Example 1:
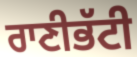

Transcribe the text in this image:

ਰਾਣੀਭੱਟੀ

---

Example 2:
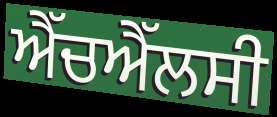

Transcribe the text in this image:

ਐੱਚਐੱਲਸੀ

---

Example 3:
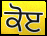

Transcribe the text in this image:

ਕੋੲ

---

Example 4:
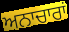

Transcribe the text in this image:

ਅਨਾਚਾਰਾਂ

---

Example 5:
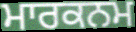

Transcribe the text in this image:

ਮਾਰਕਨਮ